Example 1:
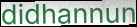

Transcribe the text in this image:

didhannun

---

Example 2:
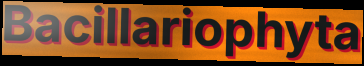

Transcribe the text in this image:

Bacillariophyta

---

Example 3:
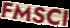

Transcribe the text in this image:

FMSCI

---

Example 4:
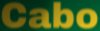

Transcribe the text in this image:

Cabo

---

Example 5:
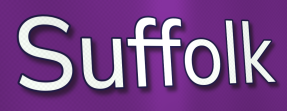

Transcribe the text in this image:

Suffolk